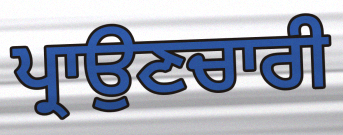
ਪ੍ਰਾਉਣਚਾਰੀ